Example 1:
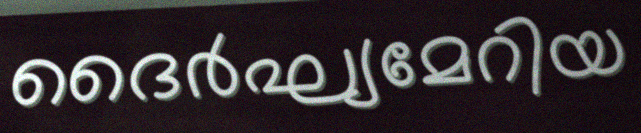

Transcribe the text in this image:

ദൈർഘ്യമേറിയ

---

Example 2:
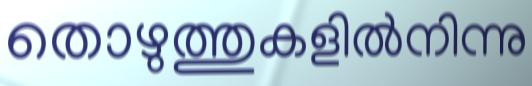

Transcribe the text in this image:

തൊഴുത്തുകളിൽനിന്നു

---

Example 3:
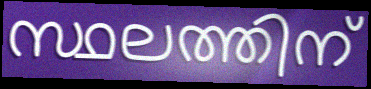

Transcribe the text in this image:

സ്ഥലത്തിന്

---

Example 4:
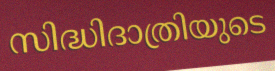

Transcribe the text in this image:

സിദ്ധിദാത്രിയുടെ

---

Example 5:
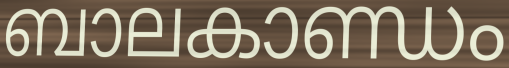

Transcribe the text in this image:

ബാലകാണ്ഡം